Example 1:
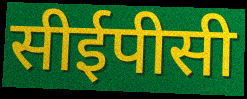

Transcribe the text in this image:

सीईपीसी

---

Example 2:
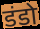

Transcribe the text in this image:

डंडो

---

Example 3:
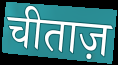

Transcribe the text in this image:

चीताज़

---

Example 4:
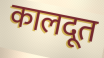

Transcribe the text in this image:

कालदूत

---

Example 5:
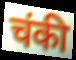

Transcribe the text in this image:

चंकी